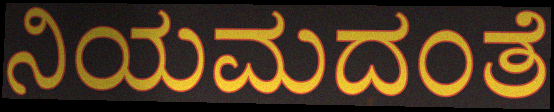
ನಿಯಮದಂತೆ